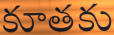
కూతకు